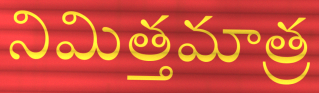
నిమిత్తమాత్ర